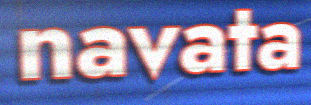
navata